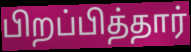
பிறப்பித்தார்